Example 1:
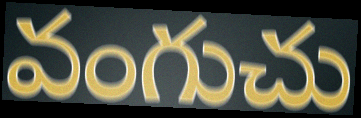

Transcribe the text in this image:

వంగుచు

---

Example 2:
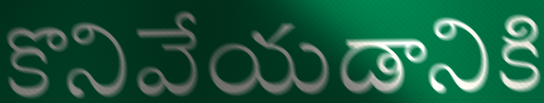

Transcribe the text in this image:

కొనివేయడానికి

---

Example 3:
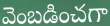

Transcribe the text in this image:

వెంబడించగా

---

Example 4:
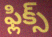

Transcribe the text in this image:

ఫ్లిక్స్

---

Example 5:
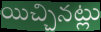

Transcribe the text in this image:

యిచ్చినట్లు